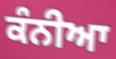
ਕੰਨੀਆ